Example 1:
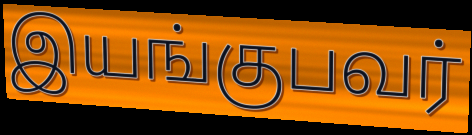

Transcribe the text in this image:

இயங்குபவர்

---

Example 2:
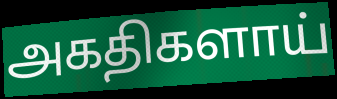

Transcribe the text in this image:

அகதிகளாய்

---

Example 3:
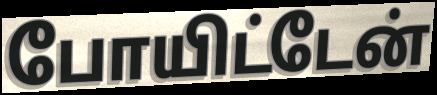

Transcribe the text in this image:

போயிட்டேன்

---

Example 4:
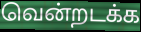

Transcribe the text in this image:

வென்றடக்க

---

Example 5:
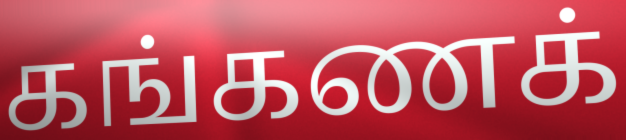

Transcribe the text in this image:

கங்கணக்